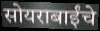
सोयराबाईंचे